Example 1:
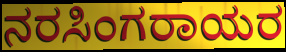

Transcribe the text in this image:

ನರಸಿಂಗರಾಯರ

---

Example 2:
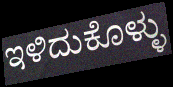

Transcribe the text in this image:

ಇಳಿದುಕೊಳ್ಳು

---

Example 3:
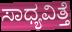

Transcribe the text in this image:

ಸಾಧ್ಯವಿತ್ತೆ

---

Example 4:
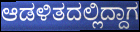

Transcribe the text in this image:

ಆಡಳಿತದಲ್ಲಿದ್ದಾಗ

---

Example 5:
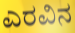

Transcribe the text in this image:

ಎರವಿನ